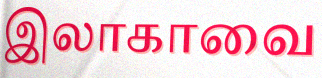
இலாகாவை